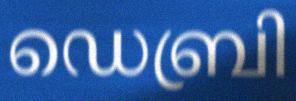
ഡെബ്രി